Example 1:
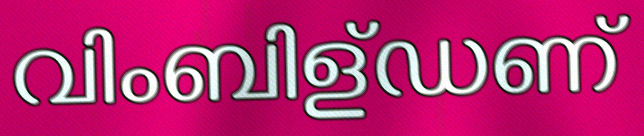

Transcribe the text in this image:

വിംബിള്ഡണ്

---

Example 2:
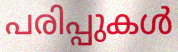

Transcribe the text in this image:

പരിപ്പുകൾ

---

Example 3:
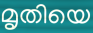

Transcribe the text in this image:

മൃതിയെ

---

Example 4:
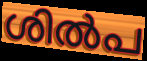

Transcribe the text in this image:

ശിൽപ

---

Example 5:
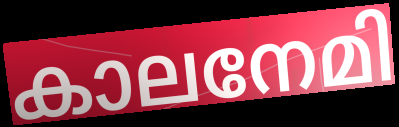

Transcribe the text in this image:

കാലനേമി